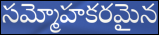
సమ్మోహకరమైన